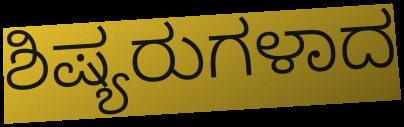
ಶಿಷ್ಯರುಗಳಾದ